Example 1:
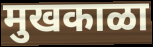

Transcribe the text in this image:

मुखकाळा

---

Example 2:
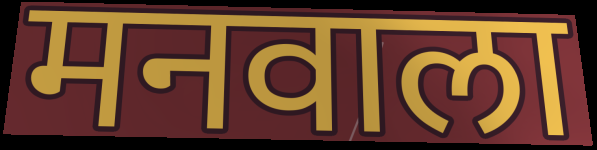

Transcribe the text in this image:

मनवाला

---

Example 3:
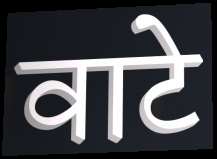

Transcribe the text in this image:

वाटे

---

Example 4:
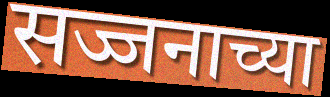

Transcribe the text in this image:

सज्जनाच्या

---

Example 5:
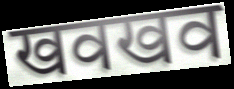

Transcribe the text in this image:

खवखव